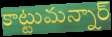
కాట్టుమన్నార్